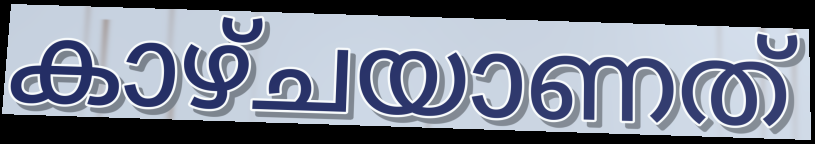
കാഴ്ചയാണത്